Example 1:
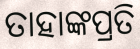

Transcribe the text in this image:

ତାହାଙ୍କପ୍ରତି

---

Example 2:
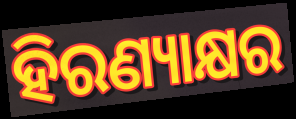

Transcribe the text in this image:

ହିରଣ୍ୟାକ୍ଷର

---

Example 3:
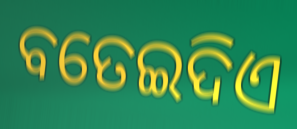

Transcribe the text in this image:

ବତେଇଦିଏ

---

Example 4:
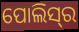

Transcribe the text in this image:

ପୋଲିସ୍‍ର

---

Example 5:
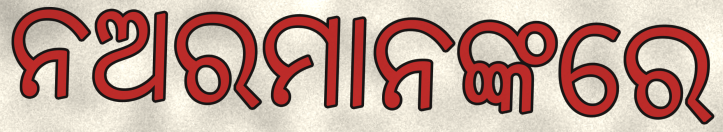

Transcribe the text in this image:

ନଅରମାନଙ୍କରେ